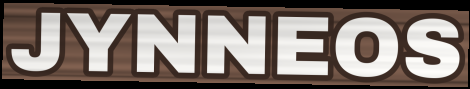
JYNNEOS